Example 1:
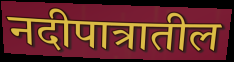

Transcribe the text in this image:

नदीपात्रातील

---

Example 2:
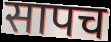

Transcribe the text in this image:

सापच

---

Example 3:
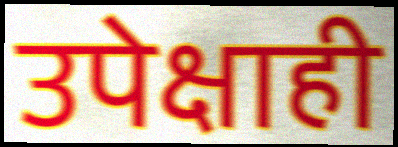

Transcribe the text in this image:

उपेक्षाही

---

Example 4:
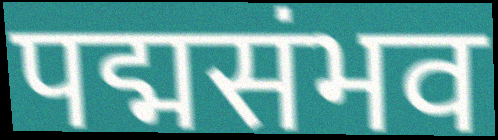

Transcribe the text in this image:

पद्मसंभव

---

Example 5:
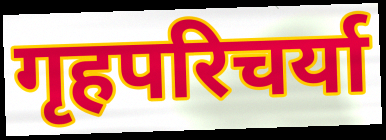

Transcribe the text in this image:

गृहपरिचर्या